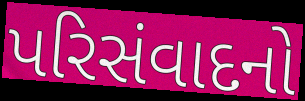
પરિસંવાદનો